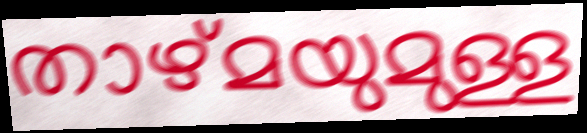
താഴ്മയുമുള്ള